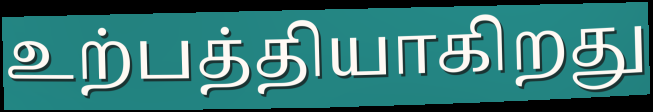
உற்பத்தியாகிறது